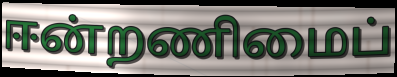
ஈன்றணிமைப்